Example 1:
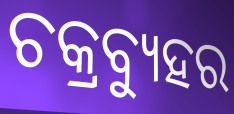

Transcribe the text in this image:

ଚକ୍ରବ୍ୟୁହର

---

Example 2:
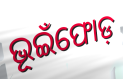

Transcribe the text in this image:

ଭୂଇଁଫୋଡ଼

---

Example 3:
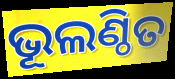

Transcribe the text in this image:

ଭୂଲଣ୍ଠିତ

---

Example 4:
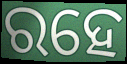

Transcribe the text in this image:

ରହେ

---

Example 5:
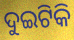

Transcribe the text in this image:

ଦୁଇଟିକି